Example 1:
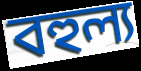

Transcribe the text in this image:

বহুল্য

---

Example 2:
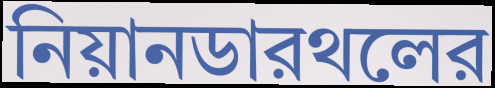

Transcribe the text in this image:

নিয়ানডারথলের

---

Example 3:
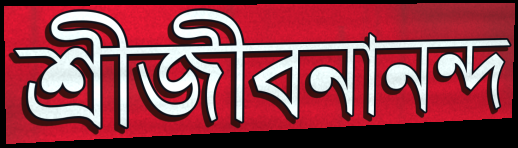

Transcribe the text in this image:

শ্রীজীবনানন্দ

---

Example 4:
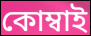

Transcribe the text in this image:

কোম্বাই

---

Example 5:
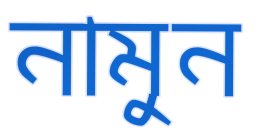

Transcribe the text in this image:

নামুন